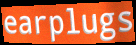
earplugs